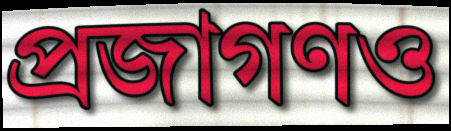
প্রজাগণও